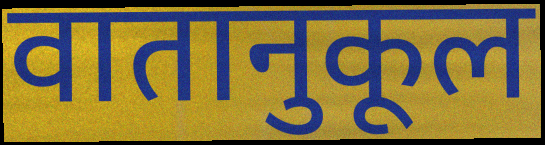
वातानुकूल